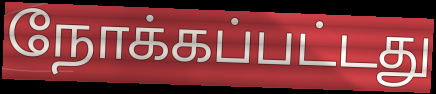
நோக்கப்பட்டது